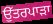
ਉੱਤਰਪਾੜਾ